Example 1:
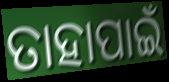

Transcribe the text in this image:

ତାହାପାଇଁ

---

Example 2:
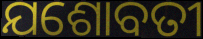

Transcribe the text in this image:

ଯଶୋବତୀ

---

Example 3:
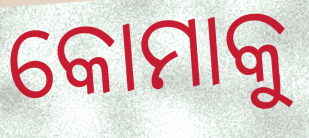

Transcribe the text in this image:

କୋମାକୁ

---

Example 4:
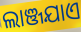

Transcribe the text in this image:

ଲାଞ୍ଜଯାଏ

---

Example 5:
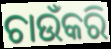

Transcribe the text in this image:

ଚାଉଁକରି